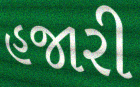
હજારી